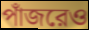
পাঁজরেও